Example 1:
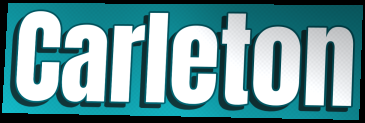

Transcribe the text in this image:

Carleton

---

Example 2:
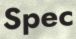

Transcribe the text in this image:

Spec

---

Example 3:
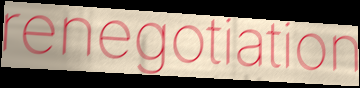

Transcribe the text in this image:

renegotiation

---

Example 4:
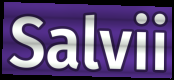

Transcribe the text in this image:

Salvii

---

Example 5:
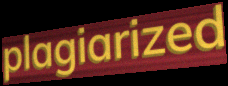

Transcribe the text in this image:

plagiarized